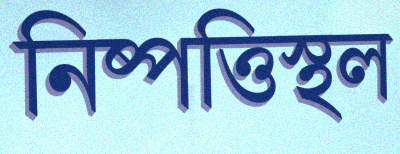
নিষ্পত্তিস্থল